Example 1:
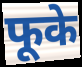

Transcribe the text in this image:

फूके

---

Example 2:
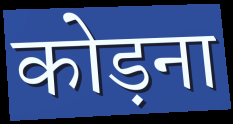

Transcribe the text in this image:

कोड़ना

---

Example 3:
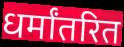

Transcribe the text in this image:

धर्मांतरित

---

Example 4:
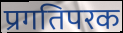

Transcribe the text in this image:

प्रगतिपरक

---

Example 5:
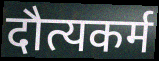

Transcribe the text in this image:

दौत्यकर्म